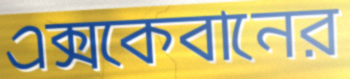
এক্সকেবানের